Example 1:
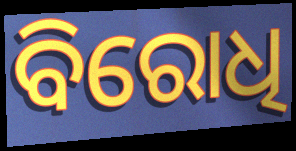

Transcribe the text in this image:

ବିରୋଧି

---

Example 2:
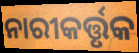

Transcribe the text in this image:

ନାରୀକର୍ତ୍ତୃକ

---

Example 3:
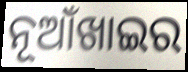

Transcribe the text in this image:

ନୂଆଁଖାଇର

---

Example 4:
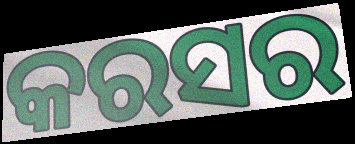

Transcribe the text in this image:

କରସର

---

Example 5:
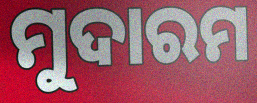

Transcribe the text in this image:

ମୁଦାରମ